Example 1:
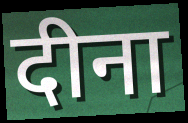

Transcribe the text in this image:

दीना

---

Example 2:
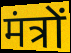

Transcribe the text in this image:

मंत्रों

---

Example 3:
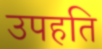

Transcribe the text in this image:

उपहति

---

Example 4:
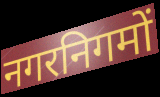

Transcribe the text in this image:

नगरनिगमों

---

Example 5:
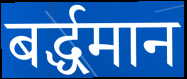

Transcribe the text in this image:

बर्द्धमान